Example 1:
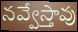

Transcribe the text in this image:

నవ్వేస్తావు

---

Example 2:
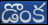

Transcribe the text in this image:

డొంక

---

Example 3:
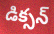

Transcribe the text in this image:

డిక్సన్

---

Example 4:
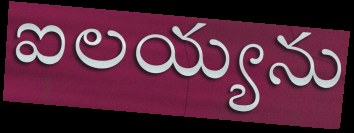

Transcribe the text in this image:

ఐలయ్యను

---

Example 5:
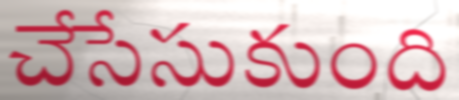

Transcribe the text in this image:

చేసేసుకుంది